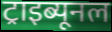
ट्राइब्यूनल